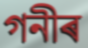
গনীৰ